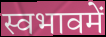
स्वभावमें